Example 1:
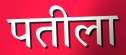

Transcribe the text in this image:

पतीला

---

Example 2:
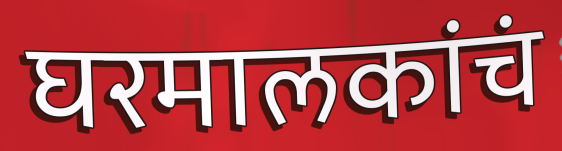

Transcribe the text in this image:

घरमालकांचं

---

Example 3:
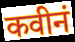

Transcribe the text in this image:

कवीनं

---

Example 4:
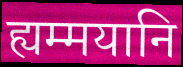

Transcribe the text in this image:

ह्यम्मयानि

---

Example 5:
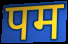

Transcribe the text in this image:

पम